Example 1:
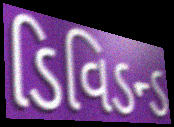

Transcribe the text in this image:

ડિવિડન્ડ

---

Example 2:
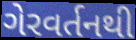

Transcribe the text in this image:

ગેરવર્તનથી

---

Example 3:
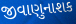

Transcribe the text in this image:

જીવાણુનાશક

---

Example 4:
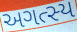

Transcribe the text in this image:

અગત્સ્ય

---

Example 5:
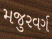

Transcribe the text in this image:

મજુરવર્ગ